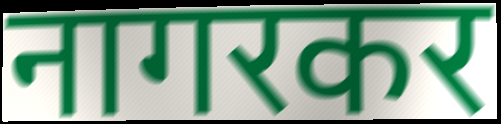
नागरकर